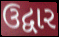
ઉદ્વાર